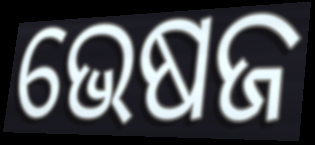
ଭେଷଜ